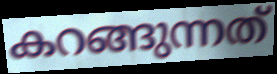
കറങ്ങുന്നത്